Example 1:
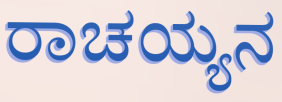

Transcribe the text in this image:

ರಾಚಯ್ಯನ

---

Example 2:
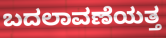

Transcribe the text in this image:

ಬದಲಾವಣೆಯತ್ತ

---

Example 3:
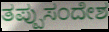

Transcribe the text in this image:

ತಪ್ಪುಸಂದೇಶ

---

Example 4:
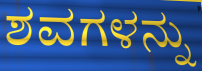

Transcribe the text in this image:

ಶವಗಳನ್ನು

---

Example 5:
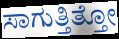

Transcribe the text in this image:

ಸಾಗುತ್ತಿತ್ತೋ